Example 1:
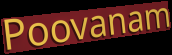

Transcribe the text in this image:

Poovanam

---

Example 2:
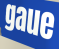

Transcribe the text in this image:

gaue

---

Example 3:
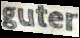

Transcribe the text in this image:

guter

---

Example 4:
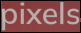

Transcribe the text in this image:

pixels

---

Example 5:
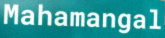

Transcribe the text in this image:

Mahamangal